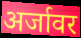
अर्जावर